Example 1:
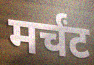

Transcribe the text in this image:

मर्चंट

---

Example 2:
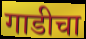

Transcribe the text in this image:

गाडीचा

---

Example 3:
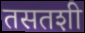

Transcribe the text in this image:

तसतशी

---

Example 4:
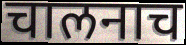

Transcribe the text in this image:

चालनाच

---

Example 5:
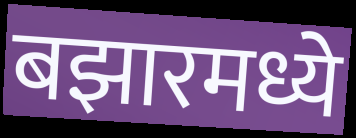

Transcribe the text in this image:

बझारमध्ये